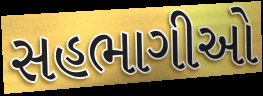
સહભાગીઓ